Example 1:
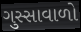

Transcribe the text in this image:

ગુસ્સાવાળો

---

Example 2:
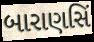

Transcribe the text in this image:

બારાણસિં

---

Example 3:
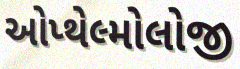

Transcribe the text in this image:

ઓપ્થેલ્મોલોજી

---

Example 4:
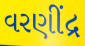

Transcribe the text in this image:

વરણીંદ્ર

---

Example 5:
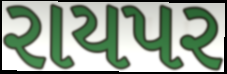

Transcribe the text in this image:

રાયપર